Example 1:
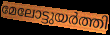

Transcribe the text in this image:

മേലോട്ടുയർത്തി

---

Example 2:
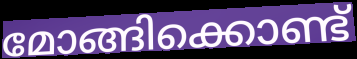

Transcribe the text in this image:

മോങ്ങിക്കൊണ്ട്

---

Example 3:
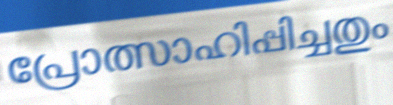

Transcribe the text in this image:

പ്രോത്സാഹിപ്പിച്ചതും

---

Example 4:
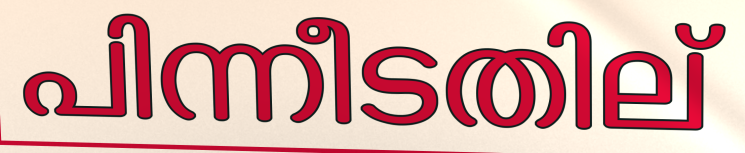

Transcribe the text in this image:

പിന്നീടതില്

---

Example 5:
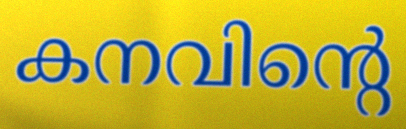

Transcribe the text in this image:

കനവിന്റെ